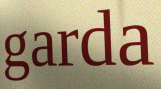
garda